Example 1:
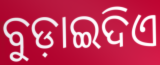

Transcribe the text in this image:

ବୁଡ଼ାଇଦିଏ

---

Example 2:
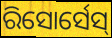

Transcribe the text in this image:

ରିସୋର୍ସେସ୍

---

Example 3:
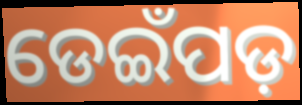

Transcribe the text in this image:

ଡେଇଁପଡ଼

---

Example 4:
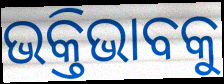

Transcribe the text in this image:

ଭକ୍ତିଭାବକୁ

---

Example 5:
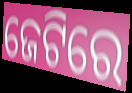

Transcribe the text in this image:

ଜେଟିରେ